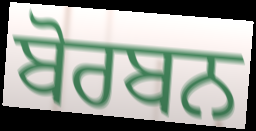
ਬੋਰਬਨ